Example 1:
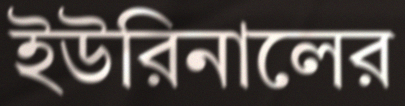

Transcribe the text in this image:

ইউরিনালের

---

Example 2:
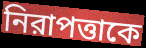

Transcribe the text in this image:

নিরাপত্তাকে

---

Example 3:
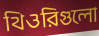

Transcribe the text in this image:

থিওরিগুলো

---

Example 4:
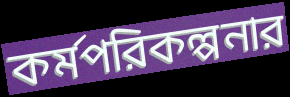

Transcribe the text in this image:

কর্মপরিকল্পনার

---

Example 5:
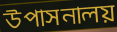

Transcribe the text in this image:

উপাসনালয়